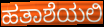
ಹತಾಶೆಯಲಿ